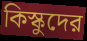
কিস্কুদের